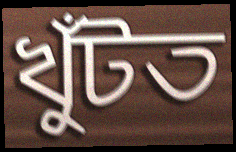
খুঁটত